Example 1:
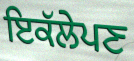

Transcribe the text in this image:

ਇਕੱਲੇਪਣ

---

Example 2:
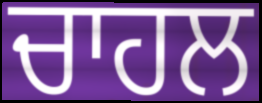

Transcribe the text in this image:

ਚਾਹਲ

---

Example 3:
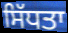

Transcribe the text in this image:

ਸਿੱਧਤਾ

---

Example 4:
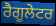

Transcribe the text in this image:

ਰੈਗੂਲੇਟਰ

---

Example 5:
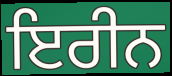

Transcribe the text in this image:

ਇਰੀਨ